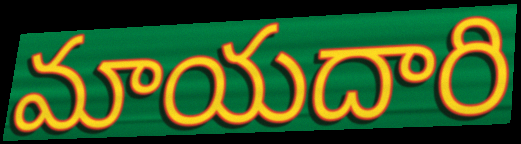
మాయదారి